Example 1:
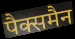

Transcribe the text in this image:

पैक्समैन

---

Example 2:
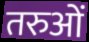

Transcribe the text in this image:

तरुओं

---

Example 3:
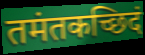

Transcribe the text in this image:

तमंतकच्छिदं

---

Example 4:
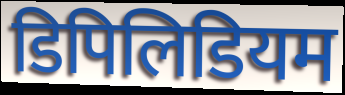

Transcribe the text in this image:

डिपिलिडियम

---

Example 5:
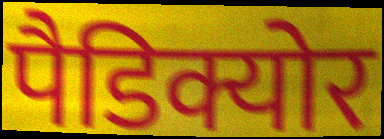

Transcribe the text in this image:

पैडिक्योर